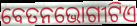
ବେତନଭୋଗୀଟିଏ